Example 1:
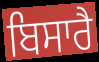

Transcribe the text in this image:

ਬਿਸਾਰੈ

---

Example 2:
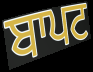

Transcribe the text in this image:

ਬਾਪਟ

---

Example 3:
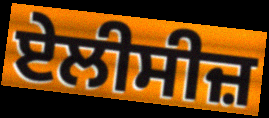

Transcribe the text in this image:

ਏਲੀਸੀਜ਼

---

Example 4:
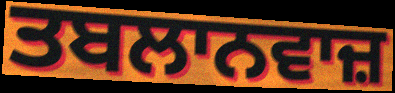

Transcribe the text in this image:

ਤਬਲਾਨਵਾਜ਼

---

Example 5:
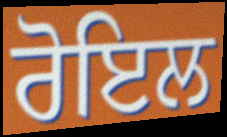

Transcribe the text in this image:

ਰੋਇਲ